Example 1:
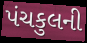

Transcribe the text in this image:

પંચકુલની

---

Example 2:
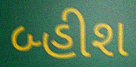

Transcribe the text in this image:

બ્હીશ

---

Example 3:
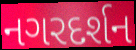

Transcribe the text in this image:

નગરદર્શન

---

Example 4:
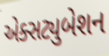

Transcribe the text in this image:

એક્સટ્યુબેશન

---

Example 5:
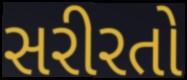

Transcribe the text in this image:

સરીરતો